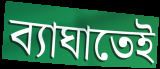
ব্যাঘাতেই